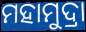
ମହାମୁଦ୍ରା